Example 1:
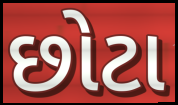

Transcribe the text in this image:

છોટા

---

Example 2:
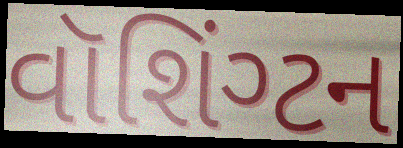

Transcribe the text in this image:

વૉશિંગ્ટન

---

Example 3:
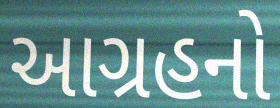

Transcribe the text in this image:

આગ્રહનો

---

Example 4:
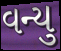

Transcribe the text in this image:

વન્યુ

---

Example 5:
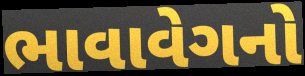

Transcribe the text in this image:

ભાવાવેગનો